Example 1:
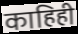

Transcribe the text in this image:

काहिही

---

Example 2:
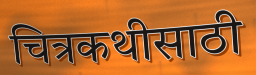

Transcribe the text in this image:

चित्रकथीसाठी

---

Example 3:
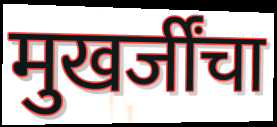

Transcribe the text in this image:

मुखर्जींचा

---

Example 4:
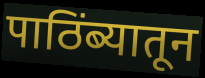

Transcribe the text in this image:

पाठिंब्यातून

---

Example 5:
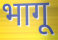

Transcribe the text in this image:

भागू